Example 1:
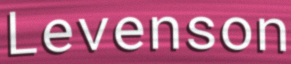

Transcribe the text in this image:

Levenson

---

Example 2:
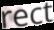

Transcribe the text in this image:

rect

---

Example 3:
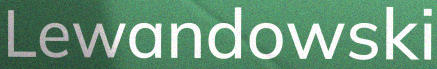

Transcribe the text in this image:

Lewandowski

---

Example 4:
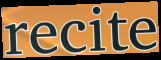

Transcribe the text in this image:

recite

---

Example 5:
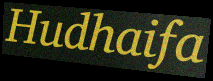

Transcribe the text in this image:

Hudhaifa